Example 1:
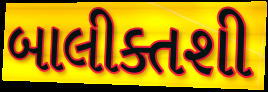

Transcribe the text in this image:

બાલીક્તશી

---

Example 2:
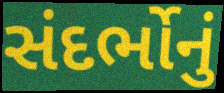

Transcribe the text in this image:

સંદર્ભોનું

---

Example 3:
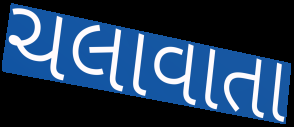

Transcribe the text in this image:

ચલાવાતા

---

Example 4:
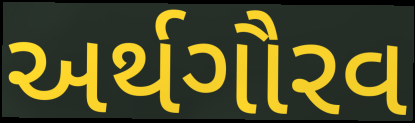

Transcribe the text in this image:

અર્થગૌરવ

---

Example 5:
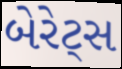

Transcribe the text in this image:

બેરેટ્સ